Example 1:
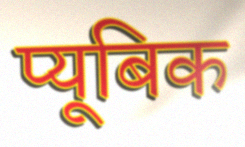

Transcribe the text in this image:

प्यूबिक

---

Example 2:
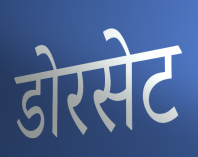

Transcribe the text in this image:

डोरसेट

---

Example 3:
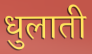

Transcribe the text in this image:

धुलाती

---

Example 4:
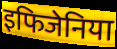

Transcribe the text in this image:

इफिजेनिया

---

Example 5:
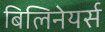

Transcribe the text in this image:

बिलिनेयर्स